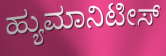
ಹ್ಯುಮಾನಿಟೀಸ್